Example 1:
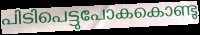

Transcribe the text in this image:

പിടിപെട്ടുപോകകൊണ്ടു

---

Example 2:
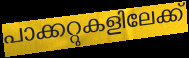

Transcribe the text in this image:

പാക്കറ്റുകളിലേക്ക്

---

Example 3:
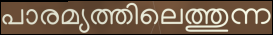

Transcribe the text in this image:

പാരമ്യത്തിലെത്തുന്ന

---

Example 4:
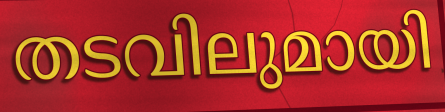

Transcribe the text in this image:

തടവിലുമായി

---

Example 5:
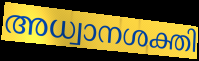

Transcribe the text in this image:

അധ്വാനശക്തി